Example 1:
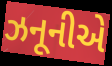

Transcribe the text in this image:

ઝનૂનીએ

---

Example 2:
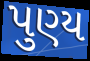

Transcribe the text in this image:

પુણ્ય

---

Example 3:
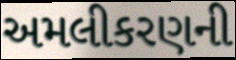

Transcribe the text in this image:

અમલીકરણની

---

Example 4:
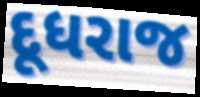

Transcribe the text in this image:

દૂધરાજ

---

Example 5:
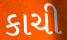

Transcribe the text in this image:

કાચી